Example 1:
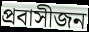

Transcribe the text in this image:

প্রবাসীজন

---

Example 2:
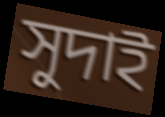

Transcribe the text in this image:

সুদাই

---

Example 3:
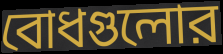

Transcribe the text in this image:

বোধগুলোর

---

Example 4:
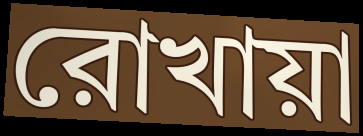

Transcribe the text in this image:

রোখায়া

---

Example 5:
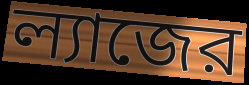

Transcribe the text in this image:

ল্যাজের